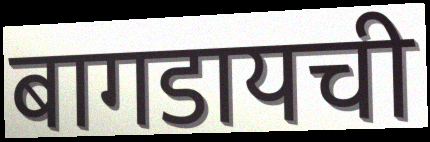
बागडायची